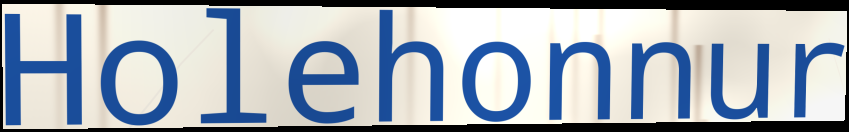
Holehonnur